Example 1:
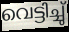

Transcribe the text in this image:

വെട്ടിച്ചു്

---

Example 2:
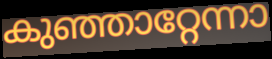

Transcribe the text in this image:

കുഞ്ഞാറ്റേന്നാ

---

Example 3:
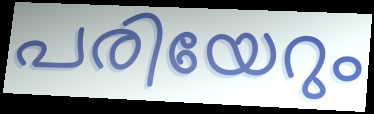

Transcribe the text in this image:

പരിയേറും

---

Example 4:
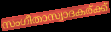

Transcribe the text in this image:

സംഗീതാസ്വാദകര്ക്ക്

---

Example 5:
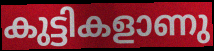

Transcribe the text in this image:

കുട്ടികളാണു